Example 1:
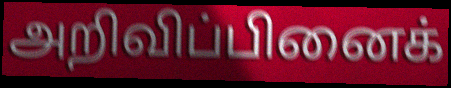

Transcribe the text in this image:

அறிவிப்பினைக்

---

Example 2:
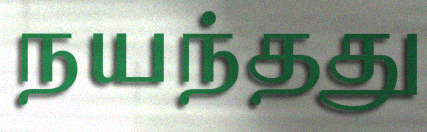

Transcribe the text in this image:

நயந்தது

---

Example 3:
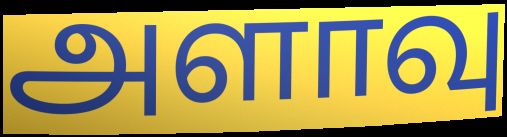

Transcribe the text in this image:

அளாவு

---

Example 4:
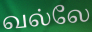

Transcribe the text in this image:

வல்லே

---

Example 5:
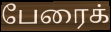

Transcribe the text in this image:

பேரைக்